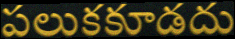
పలుకకూడదు